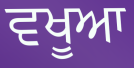
ਵਖੂਆ